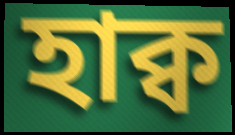
হাক্ব